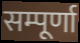
सम्पूर्णा